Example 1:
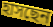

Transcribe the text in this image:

হাসছেন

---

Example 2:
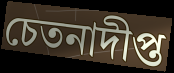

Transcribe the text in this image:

চেতনাদীপ্ত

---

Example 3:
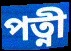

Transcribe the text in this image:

পত্নী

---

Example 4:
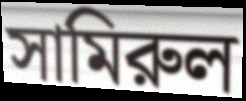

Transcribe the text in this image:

সামিরুল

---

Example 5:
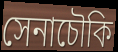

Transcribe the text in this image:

সেনাচৌকি